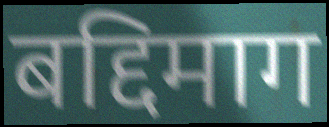
बद्दिमाग